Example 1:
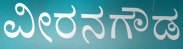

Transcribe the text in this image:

ವೀರನಗೌಡ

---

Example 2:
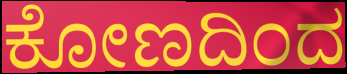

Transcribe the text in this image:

ಕೋಣದಿಂದ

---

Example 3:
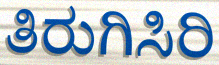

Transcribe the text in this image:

ತಿರುಗಿಸಿರಿ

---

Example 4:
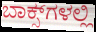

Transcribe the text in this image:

ಬಾಕ್ಸ್‌ಗಳಲ್ಲಿ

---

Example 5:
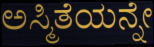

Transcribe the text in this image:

ಅಸ್ಮಿತೆಯನ್ನೇ